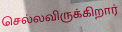
செல்லவிருக்கிறார்